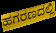
ಹಗರಣದಲ್ಲಿ